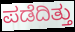
ಪಡೆದಿತ್ತು